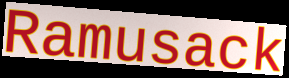
Ramusack